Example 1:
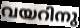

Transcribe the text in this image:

വയറിനു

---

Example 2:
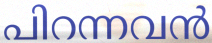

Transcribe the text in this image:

പിറന്നവൻ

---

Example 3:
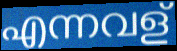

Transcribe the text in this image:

എന്നവള്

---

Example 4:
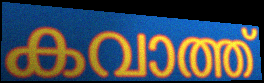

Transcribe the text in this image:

കവാത്ത്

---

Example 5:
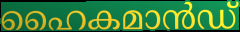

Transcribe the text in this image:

ഹൈകമാൻഡ്